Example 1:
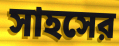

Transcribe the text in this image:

সাহসের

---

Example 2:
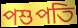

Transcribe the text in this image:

পশুপতি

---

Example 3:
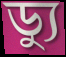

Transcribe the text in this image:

ড্যু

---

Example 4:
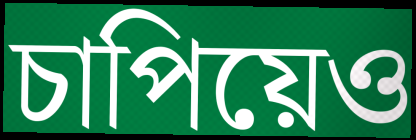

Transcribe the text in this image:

চাপিয়েও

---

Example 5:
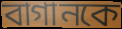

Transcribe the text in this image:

বাগানকে